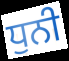
ਧੁਨੀ